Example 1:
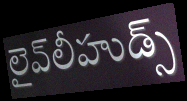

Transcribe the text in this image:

లైవ్‌లీహుడ్స్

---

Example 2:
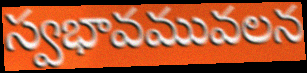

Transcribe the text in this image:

స్వభావమువలన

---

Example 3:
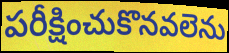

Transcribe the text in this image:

పరీక్షించుకొనవలెను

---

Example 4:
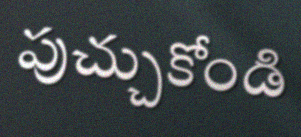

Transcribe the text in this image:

పుచ్చుకోండి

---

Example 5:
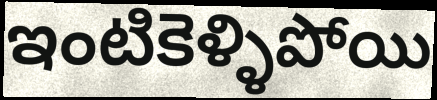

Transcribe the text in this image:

ఇంటికెళ్ళిపోయి